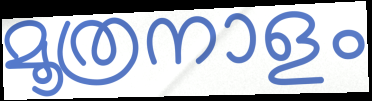
മൂത്രനാളം